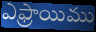
ఎఫ్రాయిము